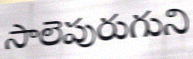
సాలెపురుగుని